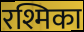
रश्मिका